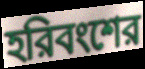
হরিবংশের